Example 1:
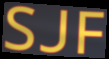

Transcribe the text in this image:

SJF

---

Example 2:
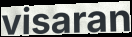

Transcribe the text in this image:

visaran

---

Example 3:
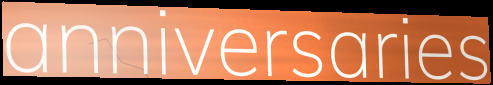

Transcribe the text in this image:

anniversaries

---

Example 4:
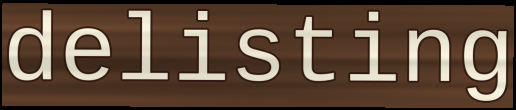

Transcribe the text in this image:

delisting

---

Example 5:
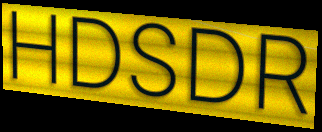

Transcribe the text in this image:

HDSDR